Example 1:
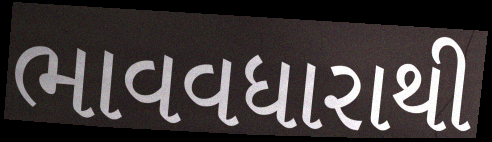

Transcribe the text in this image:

ભાવવધારાથી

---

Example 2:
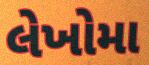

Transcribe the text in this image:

લેખોમા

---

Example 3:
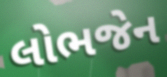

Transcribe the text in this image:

લોભજેન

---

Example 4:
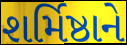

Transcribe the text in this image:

શર્મિષ્ઠાને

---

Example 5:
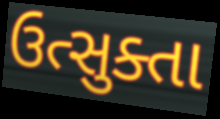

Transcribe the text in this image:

ઉત્સુક્તા